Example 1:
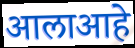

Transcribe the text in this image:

आलाआहे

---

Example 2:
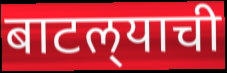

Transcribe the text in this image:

बाटल्याची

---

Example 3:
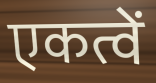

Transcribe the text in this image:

एकत्वें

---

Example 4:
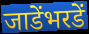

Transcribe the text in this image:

जाडेंभरडें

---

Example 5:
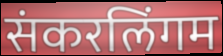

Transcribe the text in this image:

संकरलिंगम